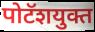
पोटॅशयुक्त